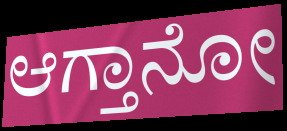
ಆಗ್ತಾನೋ